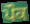
ਪੌਕ